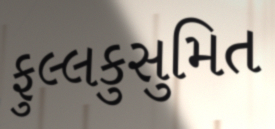
ફુલ્લકુસુમિત